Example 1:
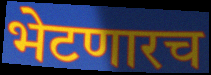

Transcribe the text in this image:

भेटणारच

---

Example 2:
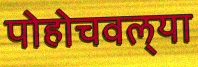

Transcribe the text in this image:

पोहोचवल्या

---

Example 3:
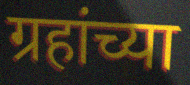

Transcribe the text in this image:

ग्रहांच्या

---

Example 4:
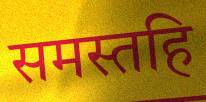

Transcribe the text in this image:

समस्तहि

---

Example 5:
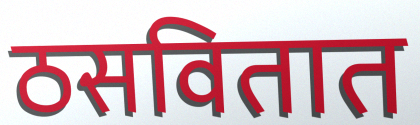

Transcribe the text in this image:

ठसवितात